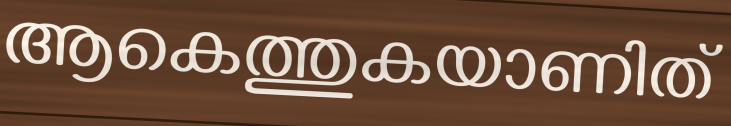
ആകെത്തുകയാണിത്